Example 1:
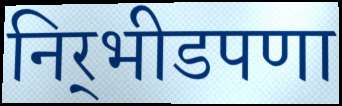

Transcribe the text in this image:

निर्भीडपणा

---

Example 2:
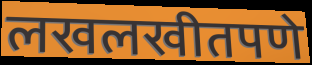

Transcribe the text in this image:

लखलखीतपणे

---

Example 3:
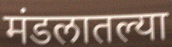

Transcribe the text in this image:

मंडलातल्या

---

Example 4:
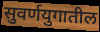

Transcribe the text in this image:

सुवर्णयुगातील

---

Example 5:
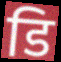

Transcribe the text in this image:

डि